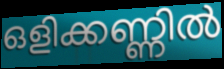
ഒളിക്കണ്ണിൽ